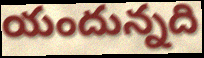
యందున్నది